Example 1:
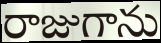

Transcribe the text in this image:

రాజుగాను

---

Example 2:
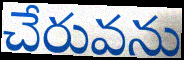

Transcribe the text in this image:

చేరువను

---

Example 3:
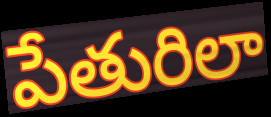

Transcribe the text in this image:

పేతురిలా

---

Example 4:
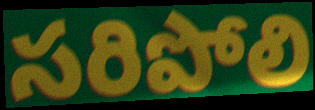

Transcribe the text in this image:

సరిపోలి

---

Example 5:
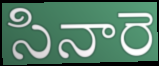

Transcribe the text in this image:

సినారె